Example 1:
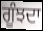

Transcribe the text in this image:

ਗੂੰਝਦਾ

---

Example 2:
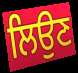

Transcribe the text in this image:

ਲਿਉਣ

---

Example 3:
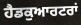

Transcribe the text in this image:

ਹੈਡਕੁਆਰਟਰਾਂ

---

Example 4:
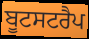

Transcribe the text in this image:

ਬੂਟਸਟਰੈਪ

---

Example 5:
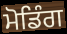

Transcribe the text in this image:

ਮੋਡਿੰਗ